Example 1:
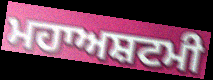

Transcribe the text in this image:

ਮਹਾਅਸ਼ਟਮੀ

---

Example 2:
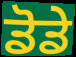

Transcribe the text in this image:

ਡੋਡੇ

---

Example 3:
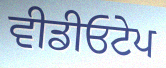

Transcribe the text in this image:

ਵੀਡੀਓਟੇਪ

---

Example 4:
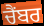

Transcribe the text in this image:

ਚੈਂਬਰ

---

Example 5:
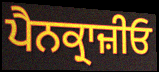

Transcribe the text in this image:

ਪੈਨਕ੍ਰਾਜ਼ੀਓ